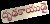
దృఢకాయుడై